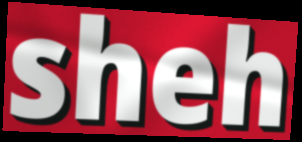
sheh